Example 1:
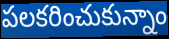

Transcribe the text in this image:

పలకరించుకున్నాం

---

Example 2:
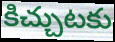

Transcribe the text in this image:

కిచ్చుటకు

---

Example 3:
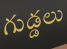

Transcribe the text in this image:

గుడ్డలు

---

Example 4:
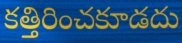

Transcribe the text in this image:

కత్తిరించకూడదు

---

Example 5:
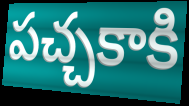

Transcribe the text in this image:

పచ్చకాకి